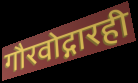
गौरवोद्गारही